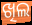
ଖିଲ